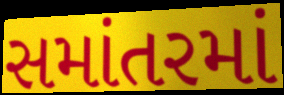
સમાંતરમાં